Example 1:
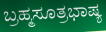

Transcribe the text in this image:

ಬ್ರಹ್ಮಸೂತ್ರಭಾಷ್ಯ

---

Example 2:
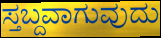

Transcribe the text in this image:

ಸ್ತಬ್ದವಾಗುವುದು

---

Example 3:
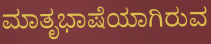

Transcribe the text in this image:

ಮಾತೃಭಾಷೆಯಾಗಿರುವ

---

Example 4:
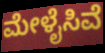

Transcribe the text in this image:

ಮೇಳೈಸಿವೆ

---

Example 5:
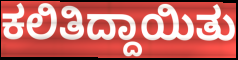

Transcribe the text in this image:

ಕಲಿತಿದ್ದಾಯಿತು